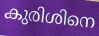
കുരിശിനെ